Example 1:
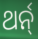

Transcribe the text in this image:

ଥର୍ନ୍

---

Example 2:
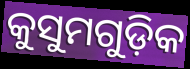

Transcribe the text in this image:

କୁସୁମଗୁଡ଼ିକ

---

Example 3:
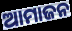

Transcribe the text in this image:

ଆମାଜନ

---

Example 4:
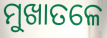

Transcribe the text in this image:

ମୁଖାତଳେ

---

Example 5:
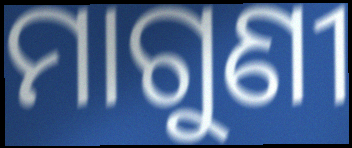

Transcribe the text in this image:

ମାଗୁଣୀ